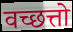
वच्छत्तो